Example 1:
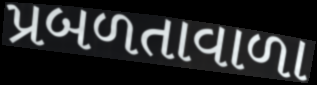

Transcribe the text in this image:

પ્રબળતાવાળા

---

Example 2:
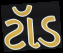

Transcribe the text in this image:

ટૉડ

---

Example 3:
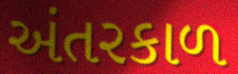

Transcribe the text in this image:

અંતરકાળ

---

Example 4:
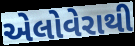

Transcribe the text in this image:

એલોવેરાથી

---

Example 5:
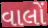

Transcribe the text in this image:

વાલોં